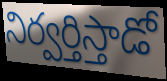
నిర్వర్తిస్తాడో